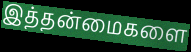
இத்தன்மைகளை